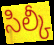
సిల్కీ